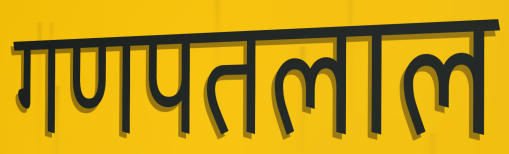
गणपतलाल